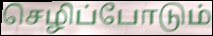
செழிப்போடும்